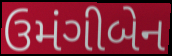
ઉમંગીબેન